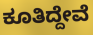
ಕೂತಿದ್ದೇವೆ